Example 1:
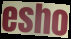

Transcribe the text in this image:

esho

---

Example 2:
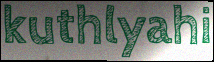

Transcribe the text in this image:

kuthlyahi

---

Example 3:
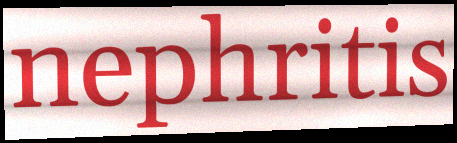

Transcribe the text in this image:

nephritis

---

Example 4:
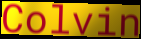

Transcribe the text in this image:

Colvin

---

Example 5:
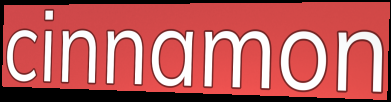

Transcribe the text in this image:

cinnamon